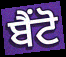
ਬੈਂਟੋ